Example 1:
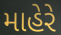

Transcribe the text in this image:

માહેરે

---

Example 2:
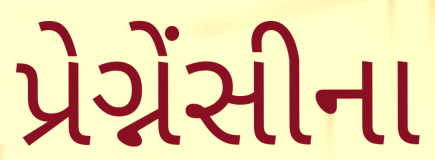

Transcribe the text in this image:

પ્રેગ્નેંસીના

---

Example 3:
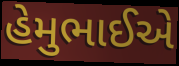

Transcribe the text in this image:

હેમુભાઈએ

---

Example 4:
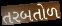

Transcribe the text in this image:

તરબતોળ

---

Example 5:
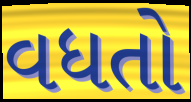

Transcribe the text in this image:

વધતો